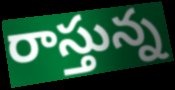
రాస్తున్న